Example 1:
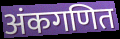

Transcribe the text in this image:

अंकगणित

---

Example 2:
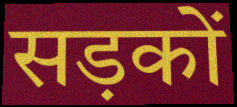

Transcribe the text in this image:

सड़कों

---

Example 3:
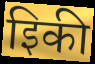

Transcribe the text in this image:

इिकी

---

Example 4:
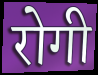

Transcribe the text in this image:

रोगी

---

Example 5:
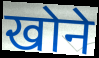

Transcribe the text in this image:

खोने